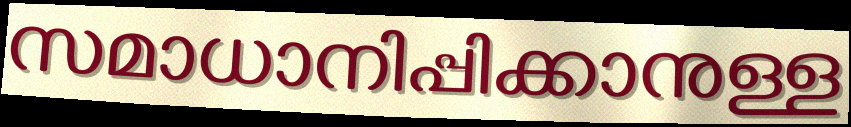
സമാധാനിപ്പിക്കാനുള്ള